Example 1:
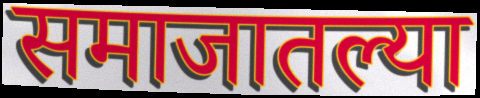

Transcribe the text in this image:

समाजातल्‍या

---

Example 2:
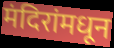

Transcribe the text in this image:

मंदिरांमधून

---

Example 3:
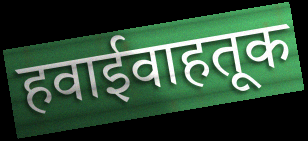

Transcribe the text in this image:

हवाईवाहतूक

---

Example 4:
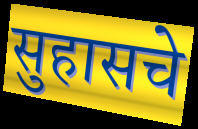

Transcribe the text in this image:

सुहासचे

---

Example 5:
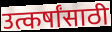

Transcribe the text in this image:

उत्कर्षांसाठी